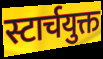
स्टार्चयुक्त